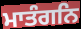
ਮਾਤੰਗਨਿ